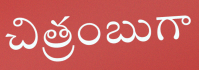
చిత్రంబుగా